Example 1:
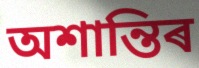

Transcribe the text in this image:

অশান্তিৰ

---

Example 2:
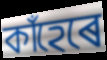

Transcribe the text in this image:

কাঁহেৰে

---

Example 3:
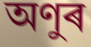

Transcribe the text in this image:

অণুৰ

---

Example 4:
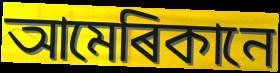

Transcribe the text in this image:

আমেৰিকানে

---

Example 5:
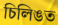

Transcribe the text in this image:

চিলিঙত